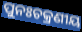
ପୁନଃଚକ୍ରଣୀୟ